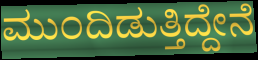
ಮುಂದಿಡುತ್ತಿದ್ದೇನೆ